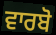
ਵਾਰਬੋ